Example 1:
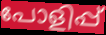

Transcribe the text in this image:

പോളിപ്പ്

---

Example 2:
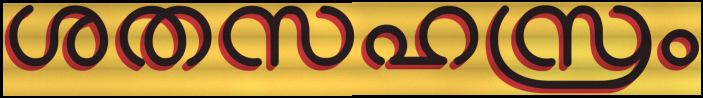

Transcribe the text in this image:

ശതസഹസ്രം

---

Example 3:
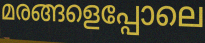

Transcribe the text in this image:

മരങ്ങളെപ്പോലെ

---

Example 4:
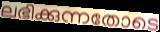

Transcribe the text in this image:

ലഭിക്കുന്നതോടെ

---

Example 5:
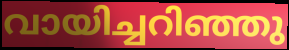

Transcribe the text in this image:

വായിച്ചറിഞ്ഞു